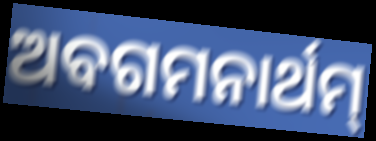
ଅବଗମନାର୍ଥମ୍